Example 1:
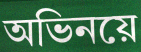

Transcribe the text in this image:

অভিনয়ে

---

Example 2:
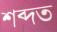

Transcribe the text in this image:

শব্দত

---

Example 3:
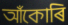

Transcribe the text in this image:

আঁকোৰি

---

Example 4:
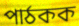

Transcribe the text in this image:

পাঠকক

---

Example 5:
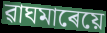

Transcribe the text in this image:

ৱাঘমাৰেয়ে